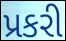
પ્રકરી